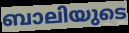
ബാലിയുടെ